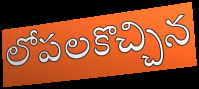
లోపలకొచ్చిన